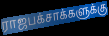
ராஜபக்சாக்களுக்கு